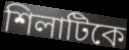
শিলাটিকে